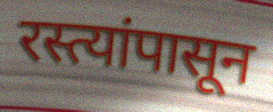
रस्त्यांपासून